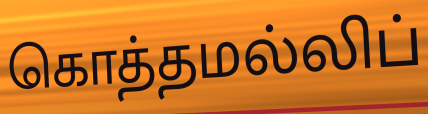
கொத்தமல்லிப்